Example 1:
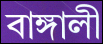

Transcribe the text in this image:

বাঙ্গালী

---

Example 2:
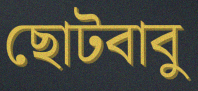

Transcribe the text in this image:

ছোটবাবু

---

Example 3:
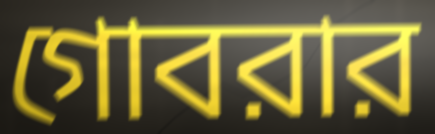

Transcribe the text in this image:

গোবরার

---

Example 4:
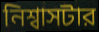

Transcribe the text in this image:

নিশ্বাসটার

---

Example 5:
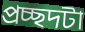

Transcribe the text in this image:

প্রচ্ছদটা